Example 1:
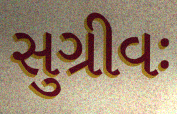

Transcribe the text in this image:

સુગ્રીવઃ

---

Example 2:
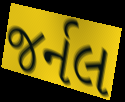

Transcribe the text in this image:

જર્નલ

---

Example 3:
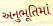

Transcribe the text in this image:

અનુભૂતિમાં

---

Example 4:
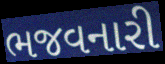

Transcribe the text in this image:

ભજવનારી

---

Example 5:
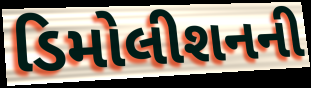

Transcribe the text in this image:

ડિમોલીશનની